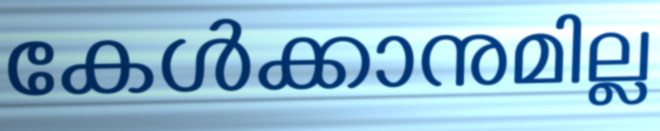
കേൾക്കാനുമില്ല